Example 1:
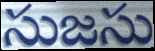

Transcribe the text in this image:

సుజసు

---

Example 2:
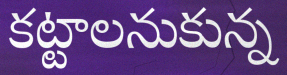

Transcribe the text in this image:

కట్టాలనుకున్న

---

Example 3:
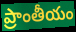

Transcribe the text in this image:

ప్రాంతీయం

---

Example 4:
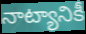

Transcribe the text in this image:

నాట్యానికీ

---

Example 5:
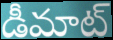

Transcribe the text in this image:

డీమాట్